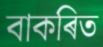
বাকৰিত